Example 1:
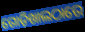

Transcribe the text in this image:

ଗୋଡ଼ିଖାଲଠାରେ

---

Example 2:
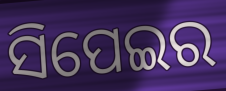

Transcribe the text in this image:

ସିପେଇର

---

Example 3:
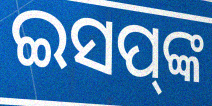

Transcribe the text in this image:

ଇସପ୍‌ଙ୍କ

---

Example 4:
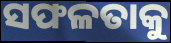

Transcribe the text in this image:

ସଫଳତାକୁ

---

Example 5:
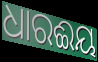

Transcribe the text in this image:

ଧାରଈୟ